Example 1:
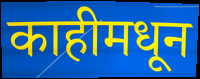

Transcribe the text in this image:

काहीमधून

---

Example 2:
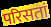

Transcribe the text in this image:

परिसतां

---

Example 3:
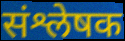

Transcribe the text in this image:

संश्लेषक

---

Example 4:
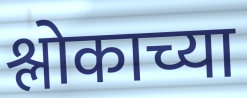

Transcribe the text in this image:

श्लोकाच्या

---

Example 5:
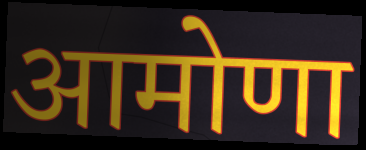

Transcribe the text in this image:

आमोणा